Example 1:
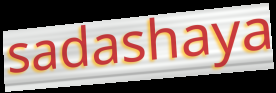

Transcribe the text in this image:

sadashaya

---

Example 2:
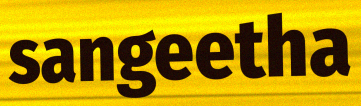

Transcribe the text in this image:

sangeetha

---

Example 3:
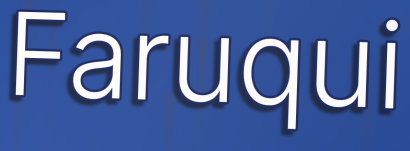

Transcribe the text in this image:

Faruqui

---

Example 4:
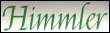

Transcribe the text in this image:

Himmler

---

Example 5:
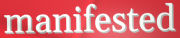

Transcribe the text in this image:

manifested